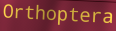
Orthoptera